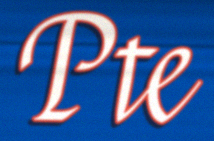
Pte